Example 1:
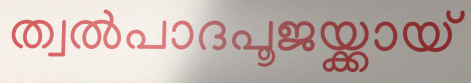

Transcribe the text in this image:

ത്വൽപാദപൂജയ്ക്കായ്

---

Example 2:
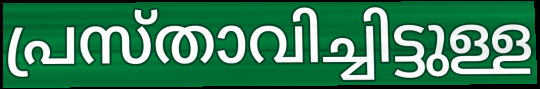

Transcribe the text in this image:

പ്രസ്താവിച്ചിട്ടുള്ള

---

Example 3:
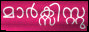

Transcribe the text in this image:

മാർക്സിസ്റ്റു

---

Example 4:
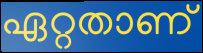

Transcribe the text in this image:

ഏറ്റതാണ്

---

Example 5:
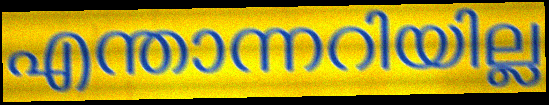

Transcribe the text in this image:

എന്താന്നറിയില്ല